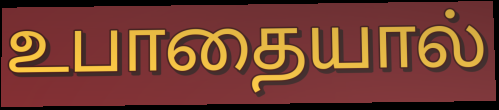
உபாதையால்